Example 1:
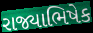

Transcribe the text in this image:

રાજ્યાભિષેક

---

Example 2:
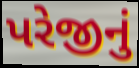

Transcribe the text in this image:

પરેજીનું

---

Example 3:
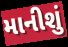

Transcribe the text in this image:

માનીશું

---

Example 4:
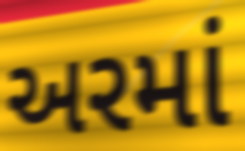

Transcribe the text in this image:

અરમાં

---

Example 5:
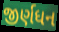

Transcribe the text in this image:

જીર્ણધન